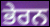
ਭੇਰਨ